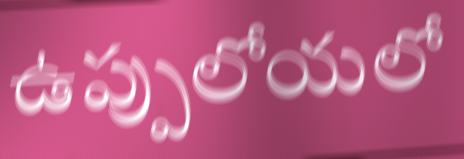
ఉప్పులోయలో